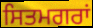
ਸਿਤਮਗਰਾਂ